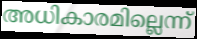
അധികാരമില്ലെന്ന്